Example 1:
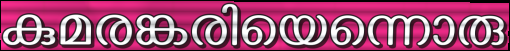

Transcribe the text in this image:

കുമരങ്കരിയെന്നൊരു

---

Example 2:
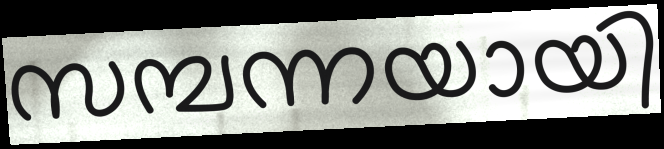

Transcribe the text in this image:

സമ്പന്നയായി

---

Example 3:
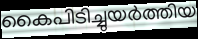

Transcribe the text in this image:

കൈപിടിച്ചുയർത്തിയ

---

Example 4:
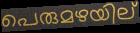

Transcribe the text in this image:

പെരുമഴയില്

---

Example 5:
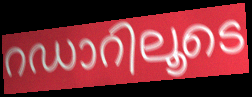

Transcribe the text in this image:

റഡാറിലൂടെ